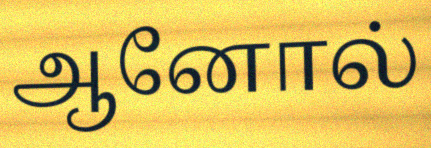
ஆனோல்